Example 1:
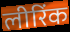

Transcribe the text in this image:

लीरिंक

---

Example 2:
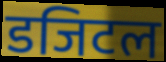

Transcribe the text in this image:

डजिटल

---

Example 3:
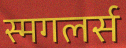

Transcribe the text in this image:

स्‍मगलर्स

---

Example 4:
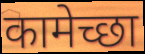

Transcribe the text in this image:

कामेच्छा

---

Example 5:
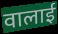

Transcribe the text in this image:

वालाई